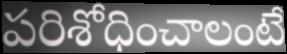
పరిశోధించాలంటే